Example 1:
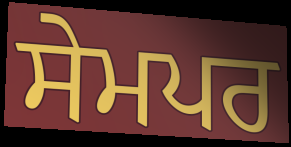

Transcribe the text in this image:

ਸੇਮਪਰ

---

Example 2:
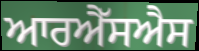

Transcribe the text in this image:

ਆਰਐੱਸਐਸ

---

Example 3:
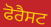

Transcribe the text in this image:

ਫੋਰੈਸਟ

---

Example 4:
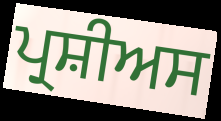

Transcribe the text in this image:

ਪ੍ਰਸ਼ੀਅਸ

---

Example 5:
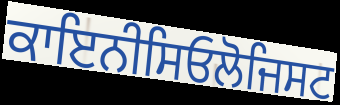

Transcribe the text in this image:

ਕਾਇਨੀਸਿਓਲੋਜਿਸਟ